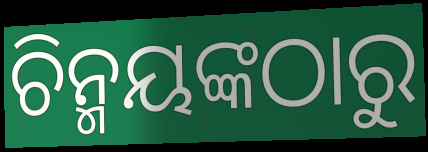
ଚିନ୍ମୟଙ୍କଠାରୁ